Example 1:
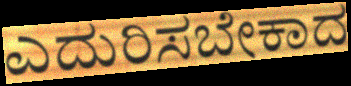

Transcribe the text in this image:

ಎದುರಿಸಬೇಕಾದ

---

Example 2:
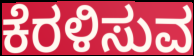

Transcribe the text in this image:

ಕೆರಳಿಸುವ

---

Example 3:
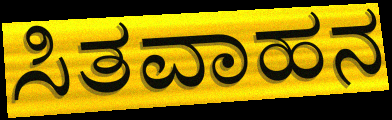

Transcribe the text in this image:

ಸಿತವಾಹನ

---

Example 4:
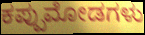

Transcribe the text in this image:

ಕಪ್ಪುಮೋಡಗಳು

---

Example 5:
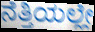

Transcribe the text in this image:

ನೆತ್ತಿಯಲ್ಲೇ